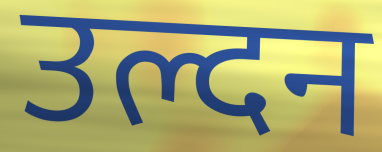
उल्दन